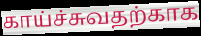
காய்ச்சுவதற்காக